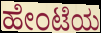
ಹೇಂಟೆಯ